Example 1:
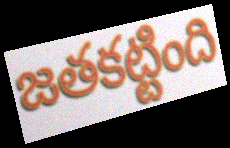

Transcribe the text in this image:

జతకట్టింది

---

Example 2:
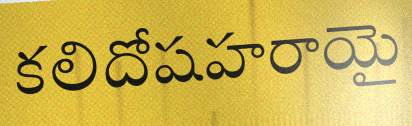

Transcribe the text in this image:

కలిదోషహరాయై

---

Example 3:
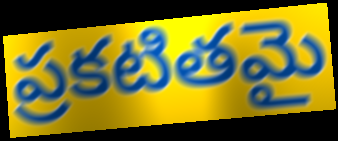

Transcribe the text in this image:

ప్రకటితమై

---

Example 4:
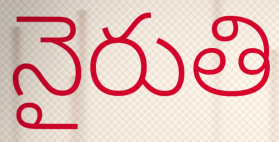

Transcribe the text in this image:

నైరుతి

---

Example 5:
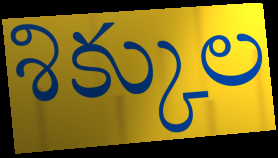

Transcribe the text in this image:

శిక్కుల